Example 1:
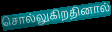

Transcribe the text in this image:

சொல்லுகிறதினால்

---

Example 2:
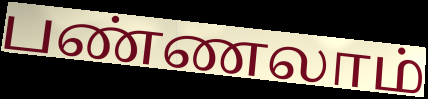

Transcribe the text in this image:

பண்ணலாம்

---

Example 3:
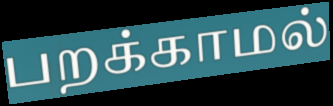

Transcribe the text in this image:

பறக்காமல்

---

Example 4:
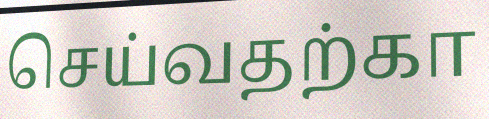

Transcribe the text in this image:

செய்வதற்கா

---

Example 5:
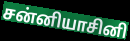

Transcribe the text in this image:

சன்னியாசினி